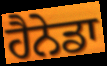
ਹੈਨੇਡਾ